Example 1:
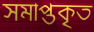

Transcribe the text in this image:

সমাপ্তকৃত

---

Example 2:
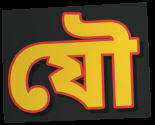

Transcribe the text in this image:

যৌ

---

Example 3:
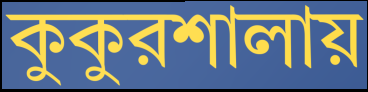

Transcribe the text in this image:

কুকুরশালায়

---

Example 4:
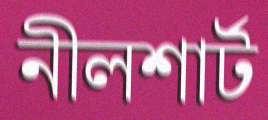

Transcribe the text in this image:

নীলশার্ট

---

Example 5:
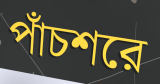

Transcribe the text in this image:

পাঁচশরে